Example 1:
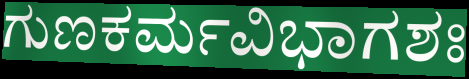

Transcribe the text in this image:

ಗುಣಕರ್ಮವಿಭಾಗಶಃ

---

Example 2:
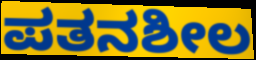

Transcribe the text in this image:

ಪತನಶೀಲ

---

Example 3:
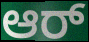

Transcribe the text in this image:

ಆರ್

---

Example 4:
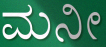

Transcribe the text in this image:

ಮನೀ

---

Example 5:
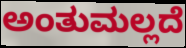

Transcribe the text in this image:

ಅಂತುಮಲ್ಲದೆ